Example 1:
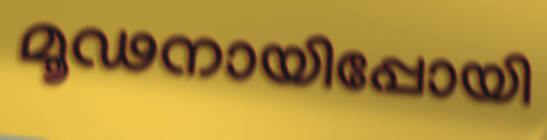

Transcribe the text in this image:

മൂഢനായിപ്പോയി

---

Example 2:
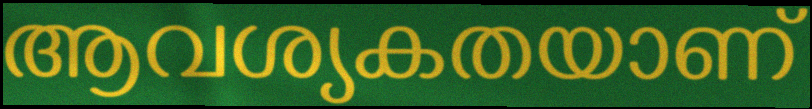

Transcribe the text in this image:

ആവശ്യകതയാണ്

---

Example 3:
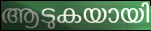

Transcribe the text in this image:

ആടുകയായി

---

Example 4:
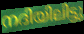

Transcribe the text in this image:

നദിയിലിട്ടു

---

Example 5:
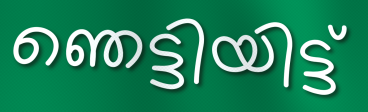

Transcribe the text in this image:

ഞെട്ടിയിട്ട്